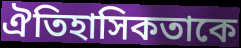
ঐতিহাসিকতাকে